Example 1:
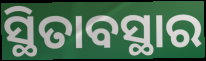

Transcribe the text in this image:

ସ୍ଥିତାବସ୍ଥାର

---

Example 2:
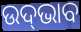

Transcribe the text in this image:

ଉଦ୍‍ଭାବ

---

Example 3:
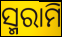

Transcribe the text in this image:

ସ୍ମରାମି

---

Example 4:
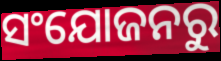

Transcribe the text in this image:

ସଂଯୋଜନରୁ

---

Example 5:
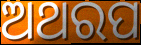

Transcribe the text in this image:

ଅଥରପ